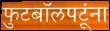
फुटबॉलपटूंना